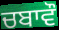
ਚਬਾਵੌ